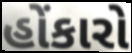
હોંકારો